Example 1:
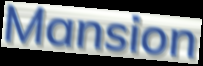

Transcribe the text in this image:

Mansion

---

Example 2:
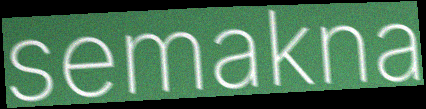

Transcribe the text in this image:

semakna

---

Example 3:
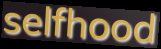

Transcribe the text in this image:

selfhood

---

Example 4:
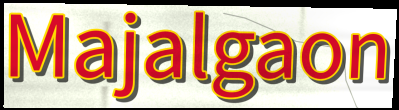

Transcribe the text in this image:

Majalgaon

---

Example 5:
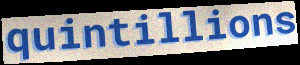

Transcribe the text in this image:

quintillions